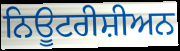
ਨਿਊਟਰੀਸ਼ੀਅਨ